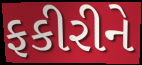
ફકીરીને